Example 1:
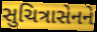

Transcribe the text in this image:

સુચિત્રાસેનને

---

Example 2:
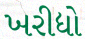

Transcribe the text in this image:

ખરીદ્યો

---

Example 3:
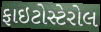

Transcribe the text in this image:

ફાઇટોસ્ટેરોલ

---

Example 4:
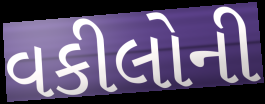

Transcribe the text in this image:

વકીલોની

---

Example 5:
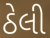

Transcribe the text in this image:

ઠેલી